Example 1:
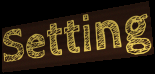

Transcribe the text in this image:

Setting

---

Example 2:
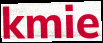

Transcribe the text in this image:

kmie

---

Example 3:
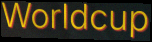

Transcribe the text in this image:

Worldcup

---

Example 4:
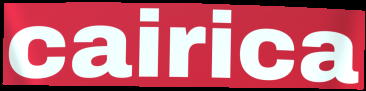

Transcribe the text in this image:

cairica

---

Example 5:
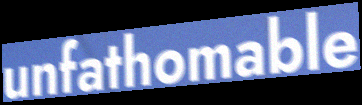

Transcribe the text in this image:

unfathomable